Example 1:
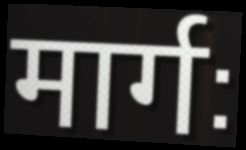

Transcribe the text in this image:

मार्गः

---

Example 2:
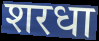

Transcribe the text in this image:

शरधा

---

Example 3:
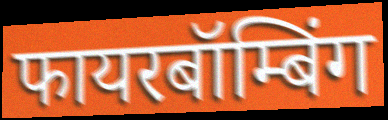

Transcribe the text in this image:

फायरबॉम्बिंग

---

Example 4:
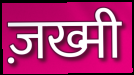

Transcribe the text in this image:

ज़ख्मी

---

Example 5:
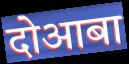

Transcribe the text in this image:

दोआबा